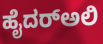
ಹೈದರ್‌ಅಲಿ